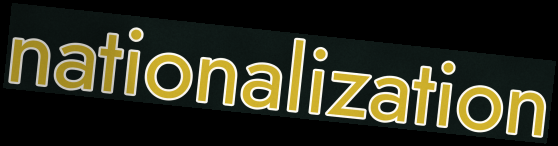
nationalization